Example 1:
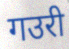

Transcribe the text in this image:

गउरी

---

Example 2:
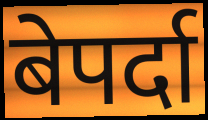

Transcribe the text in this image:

बेपर्दा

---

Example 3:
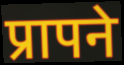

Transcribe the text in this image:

प्रापने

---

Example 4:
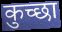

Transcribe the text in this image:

कुच्छा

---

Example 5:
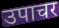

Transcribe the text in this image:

उपाचर